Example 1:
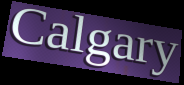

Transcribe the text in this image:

Calgary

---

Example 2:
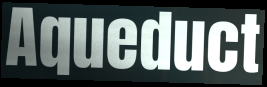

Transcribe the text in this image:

Aqueduct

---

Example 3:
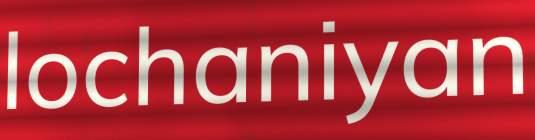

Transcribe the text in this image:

lochaniyan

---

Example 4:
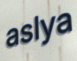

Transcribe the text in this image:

aslya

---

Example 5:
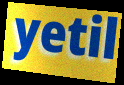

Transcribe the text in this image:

yetil